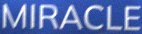
MIRACLE